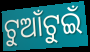
ଟୁଆଁଟୁଇଁ